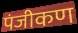
पंजीकण